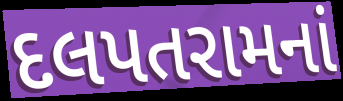
દલપતરામનાં